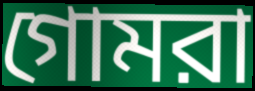
গোমরা